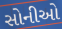
સોનીઓ